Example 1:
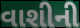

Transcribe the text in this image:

વાશીની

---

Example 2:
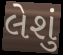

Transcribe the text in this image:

લેશું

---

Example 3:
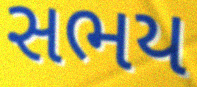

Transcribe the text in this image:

સભય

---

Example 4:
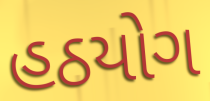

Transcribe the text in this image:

હઠયોગ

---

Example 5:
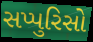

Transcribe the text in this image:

સપ્પુરિસો